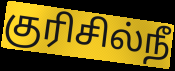
குரிசில்நீ